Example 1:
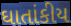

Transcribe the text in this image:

ઘાતાંકીય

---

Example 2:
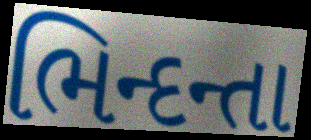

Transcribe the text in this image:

ભિન્દન્તા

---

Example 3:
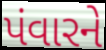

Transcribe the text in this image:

પંવારને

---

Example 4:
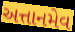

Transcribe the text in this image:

અત્તાનમેવ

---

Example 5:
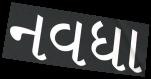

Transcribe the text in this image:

નવધા